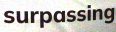
surpassing